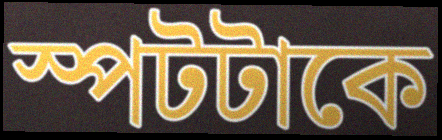
স্পটটাকে